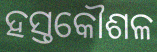
ହସ୍ତକୌଶଳ